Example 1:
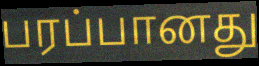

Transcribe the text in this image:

பரப்பானது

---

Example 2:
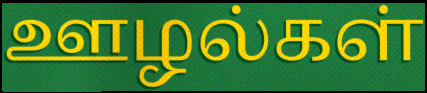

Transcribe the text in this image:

ஊழல்கள்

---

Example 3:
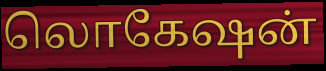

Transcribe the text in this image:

லொகேஷன்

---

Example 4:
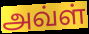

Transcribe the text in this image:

அவ்ள்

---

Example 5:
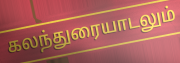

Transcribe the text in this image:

கலந்துரையாடலும்